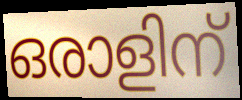
ഒരാളിന്